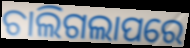
ଚାଲିଗଲାପରେ